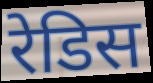
रेडिस